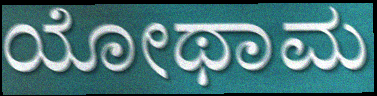
ಯೋಥಾಮ